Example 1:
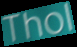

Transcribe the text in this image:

Thol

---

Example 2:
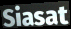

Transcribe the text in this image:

Siasat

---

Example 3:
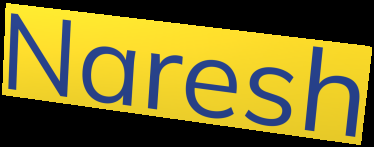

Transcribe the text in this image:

Naresh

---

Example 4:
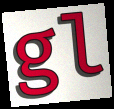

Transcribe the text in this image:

gl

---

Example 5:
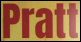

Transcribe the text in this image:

Pratt